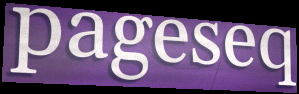
pageseq